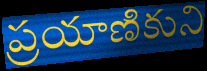
ప్రయాణికుని